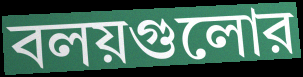
বলয়গুলোর